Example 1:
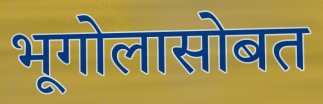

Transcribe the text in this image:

भूगोलासोबत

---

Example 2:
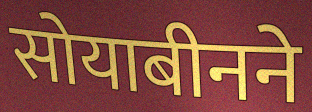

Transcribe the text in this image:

सोयाबीनने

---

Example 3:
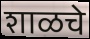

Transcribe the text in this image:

शाळचे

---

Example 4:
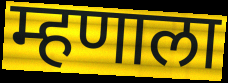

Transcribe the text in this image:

म्‍हणाला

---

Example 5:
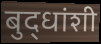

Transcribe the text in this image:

बुद्धांशी